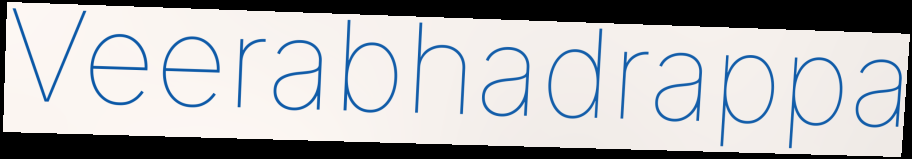
Veerabhadrappa